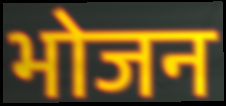
भोजन